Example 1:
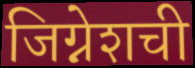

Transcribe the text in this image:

जिग्नेशची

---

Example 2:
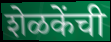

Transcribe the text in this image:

शेळकेंची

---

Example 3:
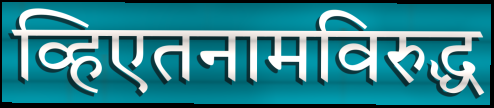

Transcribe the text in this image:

व्हिएतनामविरुद्ध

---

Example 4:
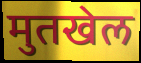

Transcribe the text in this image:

मुतखेल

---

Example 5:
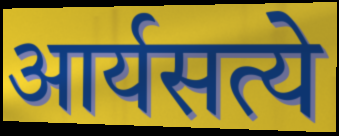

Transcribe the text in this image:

आर्यसत्ये